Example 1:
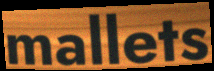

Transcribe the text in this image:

mallets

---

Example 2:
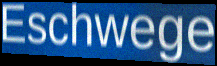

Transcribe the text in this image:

Eschwege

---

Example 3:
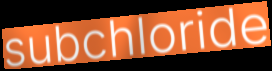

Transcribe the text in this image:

subchloride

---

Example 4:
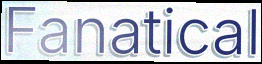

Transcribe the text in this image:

Fanatical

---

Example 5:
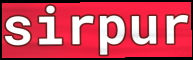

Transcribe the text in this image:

sirpur